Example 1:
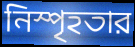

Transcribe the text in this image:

নিস্পৃহতার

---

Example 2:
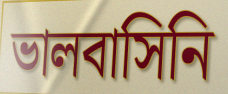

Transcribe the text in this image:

ভালবাসিনি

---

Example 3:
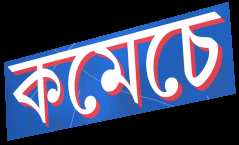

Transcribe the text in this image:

কমেচে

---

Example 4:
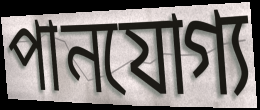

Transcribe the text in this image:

পানযোগ্য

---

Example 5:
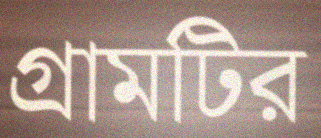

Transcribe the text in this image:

গ্রামটির